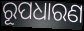
ରୂପଧାରଣ